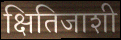
क्षितिजाशी